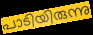
പാടിയിരുന്നു